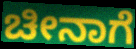
ಚೀನಾಗೆ